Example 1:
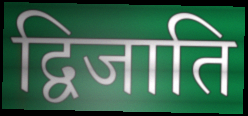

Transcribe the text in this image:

द्विजाति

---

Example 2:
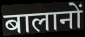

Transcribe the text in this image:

बालानों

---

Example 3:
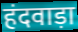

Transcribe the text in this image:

हंदवाड़ा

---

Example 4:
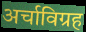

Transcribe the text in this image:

अर्चाविग्रह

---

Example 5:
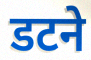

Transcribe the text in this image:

डटने